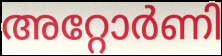
അറ്റോർണി